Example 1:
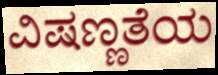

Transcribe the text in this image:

ವಿಷಣ್ಣತೆಯ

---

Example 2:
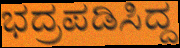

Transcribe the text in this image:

ಭದ್ರಪಡಿಸಿದ್ದ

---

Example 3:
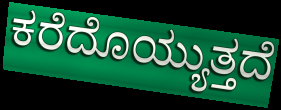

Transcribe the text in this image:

ಕರೆದೊಯ್ಯುತ್ತದೆ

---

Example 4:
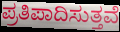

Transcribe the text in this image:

ಪ್ರತಿಪಾದಿಸುತ್ತವೆ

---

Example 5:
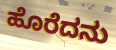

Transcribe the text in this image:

ಹೊರೆದನು